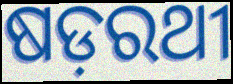
ଷଡ଼ରଥୀ